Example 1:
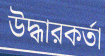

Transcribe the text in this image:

উদ্ধারকর্তা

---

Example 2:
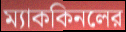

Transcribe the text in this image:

ম্যাককিনলের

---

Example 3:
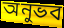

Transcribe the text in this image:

অনুভব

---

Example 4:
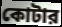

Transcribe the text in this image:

কোটার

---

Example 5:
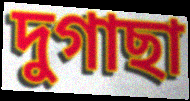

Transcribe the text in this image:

দুগাছা